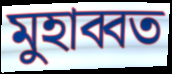
মুহাব্বত